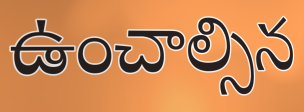
ఉంచాల్సిన